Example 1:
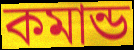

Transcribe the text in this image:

কমান্ড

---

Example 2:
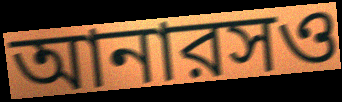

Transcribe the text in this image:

আনারসও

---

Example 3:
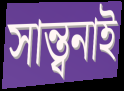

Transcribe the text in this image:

সান্ত্বনাই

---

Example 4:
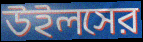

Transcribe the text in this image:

উইলসের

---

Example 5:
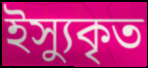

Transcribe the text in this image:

ইস্যুকৃত